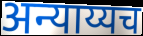
अन्याय्यच